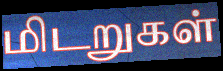
மிடறுகள்